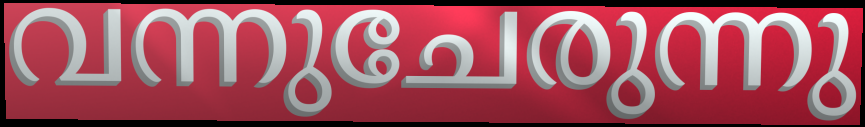
വന്നുചേരുന്നു